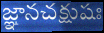
జ్ఞానచక్షుషః